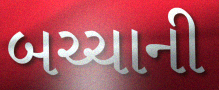
બચ્ચાની